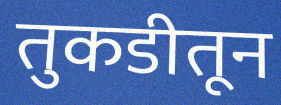
तुकडीतून